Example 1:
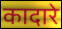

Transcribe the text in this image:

कादारे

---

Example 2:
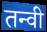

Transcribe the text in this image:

तन्वी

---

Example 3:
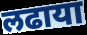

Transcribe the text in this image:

लढाया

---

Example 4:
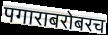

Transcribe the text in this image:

पगाराबरोबरच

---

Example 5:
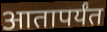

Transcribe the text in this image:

आतापर्यंत